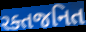
રક્તજનિત